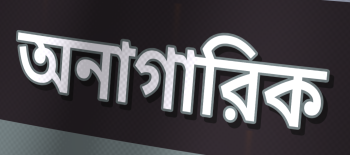
অনাগারিক